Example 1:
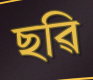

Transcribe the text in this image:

ছৱি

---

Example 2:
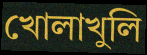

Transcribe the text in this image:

খোলাখুলি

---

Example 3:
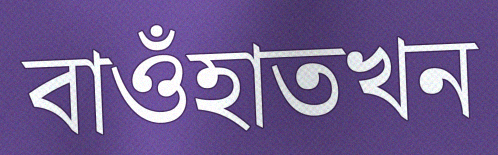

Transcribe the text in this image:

বাওঁহাতখন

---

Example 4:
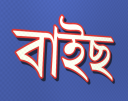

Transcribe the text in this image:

বাইছ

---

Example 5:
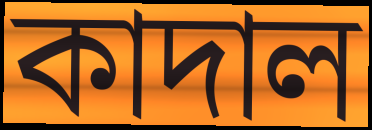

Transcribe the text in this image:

কাদাল